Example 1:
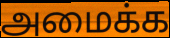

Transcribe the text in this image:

அமைக்க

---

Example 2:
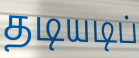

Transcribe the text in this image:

தடியடிப்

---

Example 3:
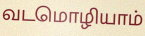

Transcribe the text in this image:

வடமொழியாம்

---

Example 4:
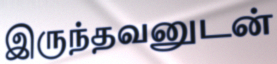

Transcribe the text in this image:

இருந்தவனுடன்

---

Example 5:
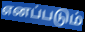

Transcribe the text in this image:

எனப்படும்